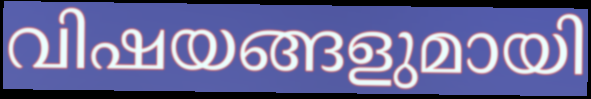
വിഷയങ്ങളുമായി